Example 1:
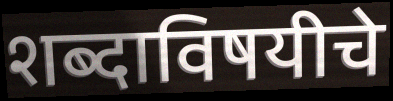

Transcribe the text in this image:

शब्दाविषयीचे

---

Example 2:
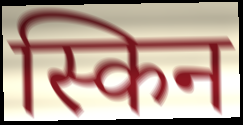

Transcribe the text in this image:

स्किन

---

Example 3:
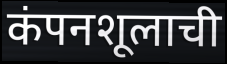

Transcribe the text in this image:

कंपनशूलाची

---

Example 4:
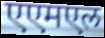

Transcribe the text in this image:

एएमएल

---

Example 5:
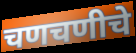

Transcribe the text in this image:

चणचणीचे